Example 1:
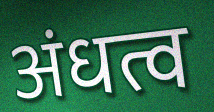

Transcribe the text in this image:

अंधत्व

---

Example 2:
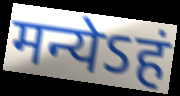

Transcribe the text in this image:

मन्येऽहं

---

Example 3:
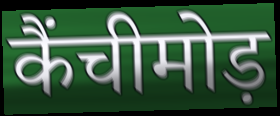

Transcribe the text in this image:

कैंचीमोड़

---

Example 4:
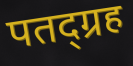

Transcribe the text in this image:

पतद्ग्रह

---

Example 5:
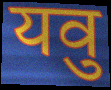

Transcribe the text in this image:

यवु